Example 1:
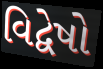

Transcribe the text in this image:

વિદ્વેષો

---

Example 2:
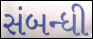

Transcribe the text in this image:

સંબન્ધી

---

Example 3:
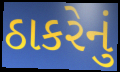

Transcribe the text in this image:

ઠાકરેનું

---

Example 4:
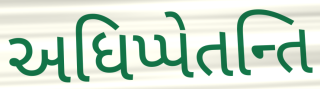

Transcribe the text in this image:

અધિપ્પેતન્તિ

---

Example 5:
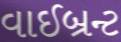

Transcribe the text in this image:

વાઈબ્રન્ટ